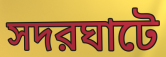
সদরঘাটে